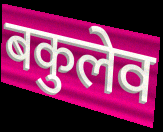
बकुलेव